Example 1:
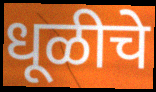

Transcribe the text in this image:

धूळीचे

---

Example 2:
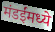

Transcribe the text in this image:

मंडईंमध्ये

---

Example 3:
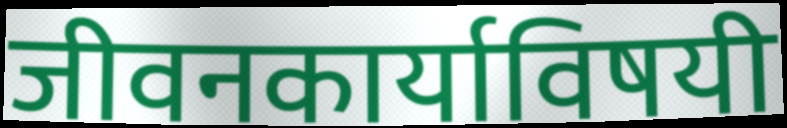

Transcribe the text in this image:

जीवनकार्याविषयी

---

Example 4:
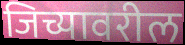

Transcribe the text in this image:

जिच्यावरील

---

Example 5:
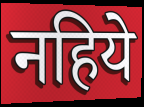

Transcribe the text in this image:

नहिये